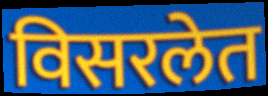
विसरलेत